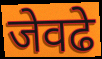
जेवढे